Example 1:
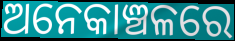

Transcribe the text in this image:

ଅନେକାଞ୍ଚଳରେ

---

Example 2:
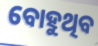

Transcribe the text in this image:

ବୋହୁଥିବ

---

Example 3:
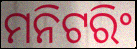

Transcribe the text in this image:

ମନିଟରିଂ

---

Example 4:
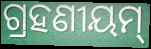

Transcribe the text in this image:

ଗ୍ରହଣୀୟମ୍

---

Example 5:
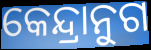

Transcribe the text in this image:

କେନ୍ଦ୍ରାନୁଗ